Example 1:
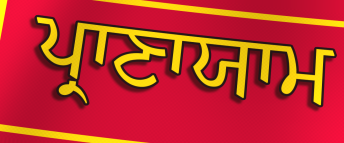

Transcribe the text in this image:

ਪ੍ਰਾਣਾਯਾਮ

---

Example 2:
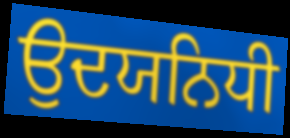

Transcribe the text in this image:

ਉਦਯਨਿਧੀ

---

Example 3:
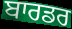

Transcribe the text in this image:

ਬਾਰਡਰ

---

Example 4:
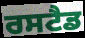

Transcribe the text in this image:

ਰਸਟੈਡ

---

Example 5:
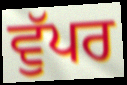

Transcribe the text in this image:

ਵੁੱਪਰ